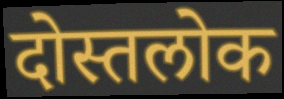
दोस्तलोक